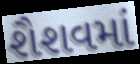
શૈશવમાં